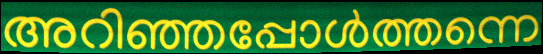
അറിഞ്ഞപ്പോൾത്തന്നെ